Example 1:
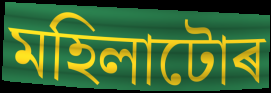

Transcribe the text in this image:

মহিলাটোৰ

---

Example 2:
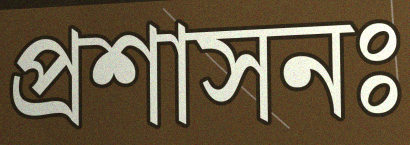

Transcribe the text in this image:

প্ৰশাসনঃ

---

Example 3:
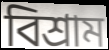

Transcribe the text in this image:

বিশ্ৰাম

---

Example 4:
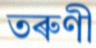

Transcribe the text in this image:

তৰুণী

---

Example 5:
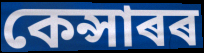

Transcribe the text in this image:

কেন্সাৰৰ